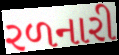
રળનારી